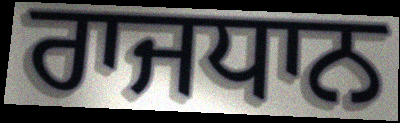
ਰਾਜਧਾਨ